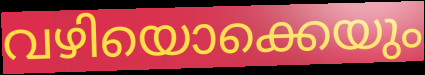
വഴിയൊക്കെയും